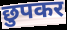
छुपकर